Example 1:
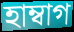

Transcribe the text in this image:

হাম্বাগ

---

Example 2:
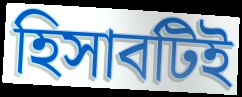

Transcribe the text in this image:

হিসাবটিই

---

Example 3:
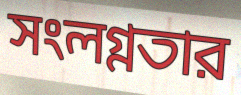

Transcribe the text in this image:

সংলগ্নতার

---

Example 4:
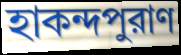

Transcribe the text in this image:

হাকন্দপুরাণ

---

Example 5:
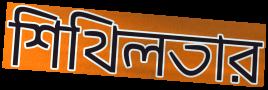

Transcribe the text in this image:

শিথিলতার